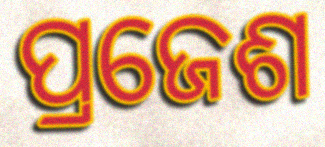
ପ୍ରଜେଶ